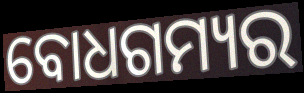
ବୋଧଗମ୍ୟର